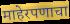
माहेरपणाचा